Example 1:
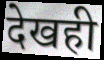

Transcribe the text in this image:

देखही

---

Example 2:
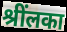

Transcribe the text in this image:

श्रींलका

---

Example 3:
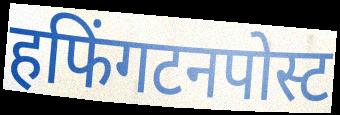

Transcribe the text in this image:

हफिंगटनपोस्ट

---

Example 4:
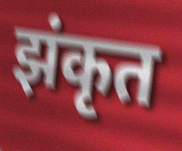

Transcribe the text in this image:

झंकृत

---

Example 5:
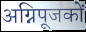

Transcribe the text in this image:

अग्निपूजकों